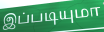
இப்படியுமா